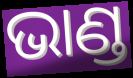
ଭାଣ୍ଡ